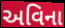
અવિના